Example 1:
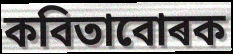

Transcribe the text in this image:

কবিতাবোৰক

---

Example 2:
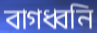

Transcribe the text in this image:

বাগধ্বনি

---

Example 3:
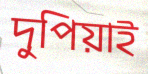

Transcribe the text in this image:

দুপিয়াই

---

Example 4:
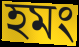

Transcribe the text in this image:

হমং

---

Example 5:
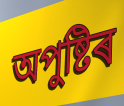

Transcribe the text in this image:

অপুষ্টিৰ